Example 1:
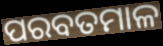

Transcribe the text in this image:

ପରବତମାଳ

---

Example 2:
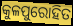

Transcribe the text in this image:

କୁଳପୁରୋହିତ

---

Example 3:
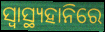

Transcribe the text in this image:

ସ୍ୱାସ୍ଥ୍ୟହାନିରେ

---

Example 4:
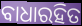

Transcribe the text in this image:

ବାଧାରହିତ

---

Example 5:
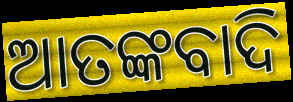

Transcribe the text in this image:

ଆତଙ୍କବାଦି